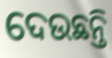
ଦେଉଛନ୍ତି